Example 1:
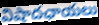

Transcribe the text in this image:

విషాదఛాయలు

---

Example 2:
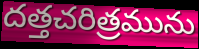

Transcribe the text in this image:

దత్తచరిత్రమును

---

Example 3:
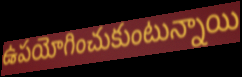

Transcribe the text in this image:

ఉపయోగించుకుంటున్నాయి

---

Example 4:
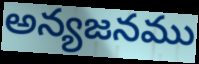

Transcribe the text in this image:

అన్యజనము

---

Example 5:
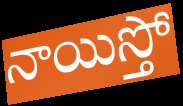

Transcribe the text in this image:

నాయిస్తో